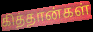
கித்தான்கள்